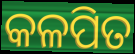
କଳପିତ